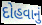
દોહવાનું